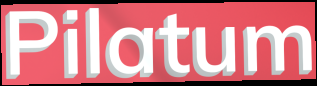
Pilatum